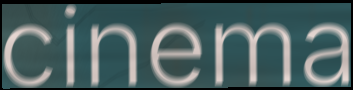
cinema